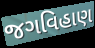
જગવિહાણ